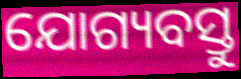
ଯୋଗ୍ୟବସ୍ତୁ